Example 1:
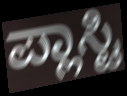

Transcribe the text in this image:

ಪ್ಲಾಸ್ಟಿ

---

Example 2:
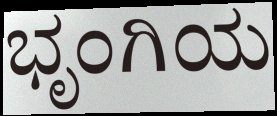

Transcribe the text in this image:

ಭೃಂಗಿಯ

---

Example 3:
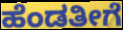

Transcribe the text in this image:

ಹೆಂಡತೀಗೆ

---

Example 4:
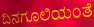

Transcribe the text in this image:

ದಿನಗೂಲಿಯಂತೆ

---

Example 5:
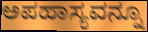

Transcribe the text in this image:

ಅಪಹಾಸ್ಯವನ್ನೂ